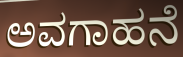
ಅವಗಾಹನೆ